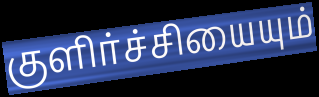
குளிர்ச்சியையும்